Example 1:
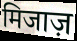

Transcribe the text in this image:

मिजाज़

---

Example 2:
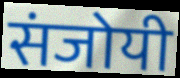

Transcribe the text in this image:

संजोयी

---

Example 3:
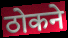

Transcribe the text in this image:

ठोकने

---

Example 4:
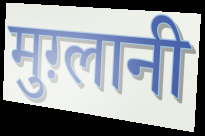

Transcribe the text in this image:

मुग़्लानी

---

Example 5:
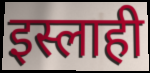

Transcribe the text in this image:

इस्लाही